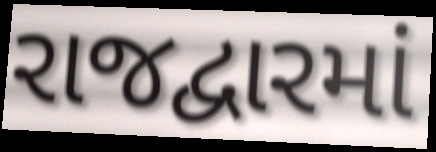
રાજદ્વારમાં